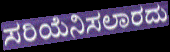
ಸರಿಯೆನಿಸಲಾರದು